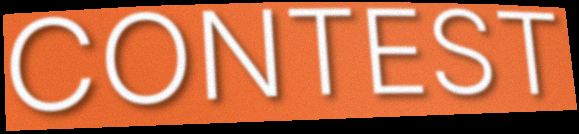
CONTEST